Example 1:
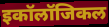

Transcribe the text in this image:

इकॉलॉजिकल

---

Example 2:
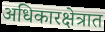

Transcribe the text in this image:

अधिकारक्षेत्रात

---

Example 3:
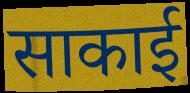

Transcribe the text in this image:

साकाई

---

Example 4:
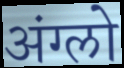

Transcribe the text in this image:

अंग्लो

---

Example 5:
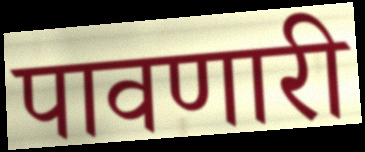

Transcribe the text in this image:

पावणारी